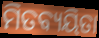
ମିତବ୍ୟୟିତା